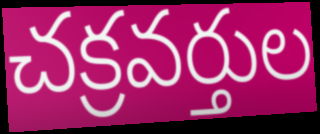
చక్రవర్తుల